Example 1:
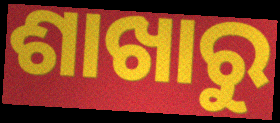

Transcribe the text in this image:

ଶାଖାରୁ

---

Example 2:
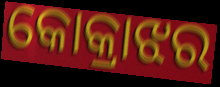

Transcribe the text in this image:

କୋକ୍ରାଝର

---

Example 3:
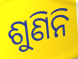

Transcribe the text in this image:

ଶୁଣିନି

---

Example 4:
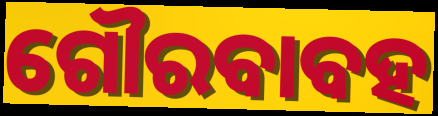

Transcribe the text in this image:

ଗୌରବାବହ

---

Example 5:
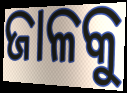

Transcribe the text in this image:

ଜାଳକୁ